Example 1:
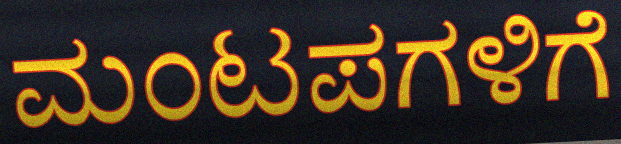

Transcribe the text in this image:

ಮಂಟಪಗಳಿಗೆ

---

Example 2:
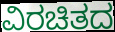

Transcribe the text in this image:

ವಿರಚಿತದ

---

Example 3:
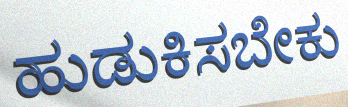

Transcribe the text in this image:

ಹುಡುಕಿಸಬೇಕು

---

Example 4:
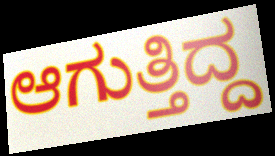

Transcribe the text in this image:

ಆಗುತ್ತಿದ್ದ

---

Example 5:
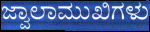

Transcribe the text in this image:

ಜ್ವಾಲಾಮುಖಿಗಳು